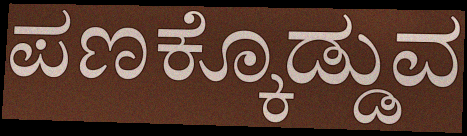
ಪಣಕ್ಕೊಡ್ಡುವ